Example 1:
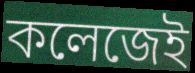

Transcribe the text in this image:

কলেজেই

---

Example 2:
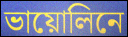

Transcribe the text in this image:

ভায়োলিনে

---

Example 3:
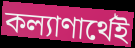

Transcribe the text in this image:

কল্যাণার্থেই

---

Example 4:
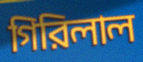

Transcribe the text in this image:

গিরিলাল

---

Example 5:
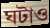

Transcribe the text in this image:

ঘটাও